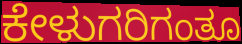
ಕೇಳುಗರಿಗಂತೂ